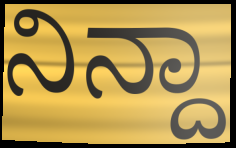
ನಿನ್ದಾ